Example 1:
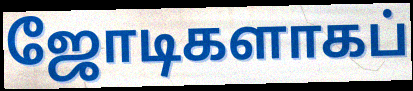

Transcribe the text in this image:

ஜோடிகளாகப்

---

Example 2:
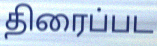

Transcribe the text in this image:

திரைப்பட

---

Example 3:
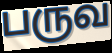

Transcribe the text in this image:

பருவ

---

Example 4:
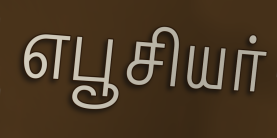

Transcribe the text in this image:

எபூசியர்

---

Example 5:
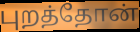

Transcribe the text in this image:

புறத்தோன்